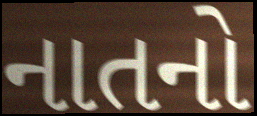
નાતનો